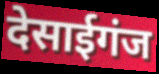
देसाईगंज